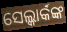
ସେଲ୍କାର୍କଙ୍କ